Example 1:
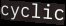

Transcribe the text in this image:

cyclic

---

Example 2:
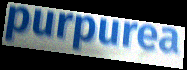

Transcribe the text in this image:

purpurea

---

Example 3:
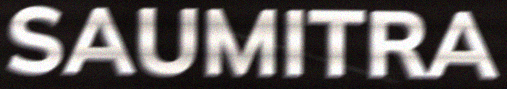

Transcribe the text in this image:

SAUMITRA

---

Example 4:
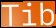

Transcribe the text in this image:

Tib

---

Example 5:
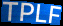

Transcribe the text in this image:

TPLF